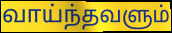
வாய்ந்தவளும்